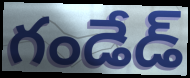
గండేడ్